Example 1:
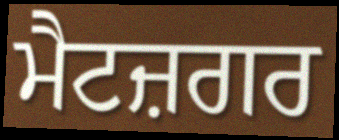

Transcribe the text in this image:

ਮੈਟਜ਼ਗਰ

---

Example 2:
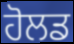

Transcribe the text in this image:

ਹੋਲਡ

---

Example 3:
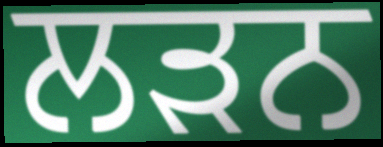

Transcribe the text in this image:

ਲੜਨ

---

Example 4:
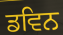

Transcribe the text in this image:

ਡਵਿਨ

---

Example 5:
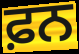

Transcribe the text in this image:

ਫ਼ਨ